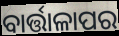
ବାର୍ତ୍ତାଳାପର